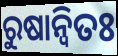
ରୁଷାନ୍ଵିତଃ